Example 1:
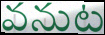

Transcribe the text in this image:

వనుట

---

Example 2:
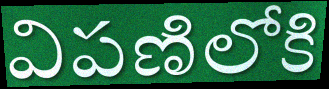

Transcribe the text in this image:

విపణిలోకి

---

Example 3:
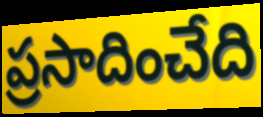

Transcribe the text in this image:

ప్రసాదించేది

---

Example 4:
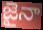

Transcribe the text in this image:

జైనా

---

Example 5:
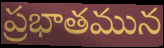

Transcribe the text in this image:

ప్రభాతమున